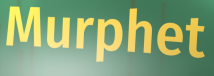
Murphet